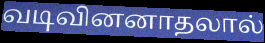
வடிவினனாதலால்